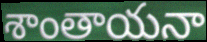
శాంతాయనా